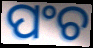
ପଂଚ